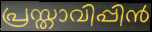
പ്രസ്താവിപ്പിൻ